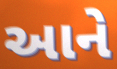
આને